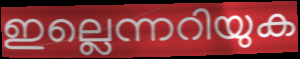
ഇല്ലെന്നറിയുക